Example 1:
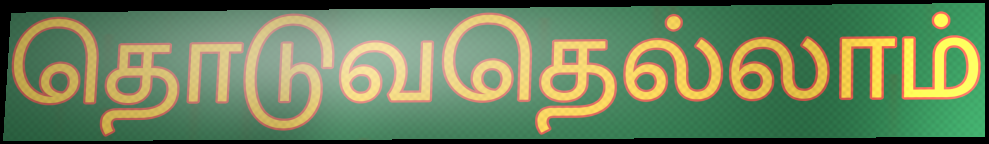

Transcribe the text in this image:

தொடுவதெல்லாம்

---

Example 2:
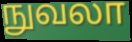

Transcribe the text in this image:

நுவலா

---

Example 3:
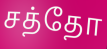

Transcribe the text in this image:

சத்தோ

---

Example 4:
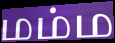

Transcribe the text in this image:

மம்ம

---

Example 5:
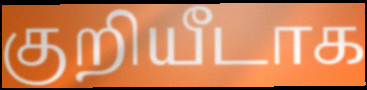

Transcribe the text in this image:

குறியீடாக